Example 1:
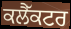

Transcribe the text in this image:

ਕਲੈੱਕਟਰ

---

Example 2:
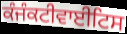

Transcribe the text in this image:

ਕੰਜੰਕਟੀਵਾਈਟਿਸ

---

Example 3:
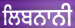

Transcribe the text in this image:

ਲਿਬਨਾਨੀ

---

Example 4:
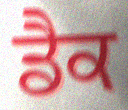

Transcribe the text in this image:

ਡੈਕ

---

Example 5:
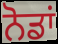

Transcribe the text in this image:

ਨੋਡਾਂ